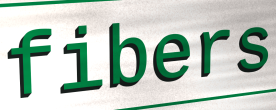
fibers